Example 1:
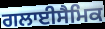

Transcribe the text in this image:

ਗਲਾਈਸੈਮਿਕ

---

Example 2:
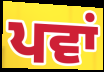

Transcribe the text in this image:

ਪਵਾਂ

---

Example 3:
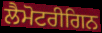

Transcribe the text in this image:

ਲੈਮੋਟਰੀਗਿਨ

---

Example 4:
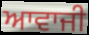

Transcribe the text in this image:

ਆਵਾਜੀ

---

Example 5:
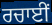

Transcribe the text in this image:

ਰਚਾਈਂ